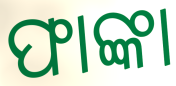
ଫାଙ୍କା